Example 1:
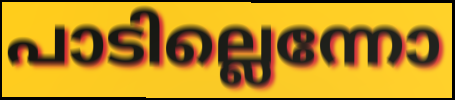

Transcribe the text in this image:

പാടില്ലെന്നോ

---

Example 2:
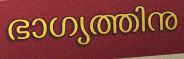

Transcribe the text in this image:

ഭാഗ്യത്തിനു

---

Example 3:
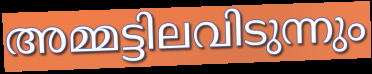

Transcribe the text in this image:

അമ്മട്ടിലവിടുന്നും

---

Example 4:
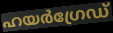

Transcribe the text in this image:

ഹയർഗ്രേഡ്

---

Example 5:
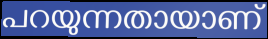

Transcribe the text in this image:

പറയുന്നതായാണ്